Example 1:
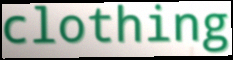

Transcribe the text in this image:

clothing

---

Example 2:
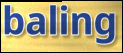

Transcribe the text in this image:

baling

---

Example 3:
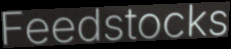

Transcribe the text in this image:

Feedstocks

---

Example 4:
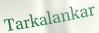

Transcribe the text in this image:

Tarkalankar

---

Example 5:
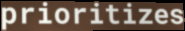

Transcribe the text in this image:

prioritizes